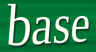
base